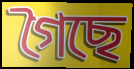
গৈছে